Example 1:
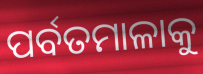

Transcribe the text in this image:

ପର୍ବତମାଳାକୁ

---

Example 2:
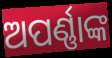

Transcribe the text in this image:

ଅପର୍ଣ୍ଣାଙ୍କ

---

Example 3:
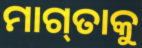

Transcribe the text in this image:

ମାଗ୍‌ତାକୁ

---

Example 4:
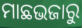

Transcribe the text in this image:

ମାଛଭଜାରୁ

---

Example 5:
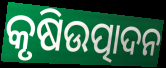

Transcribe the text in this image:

କୃଷିଉତ୍ପାଦନ